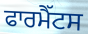
ਫਾਰਮੈੱਟਸ